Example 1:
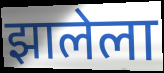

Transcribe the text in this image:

झालेला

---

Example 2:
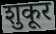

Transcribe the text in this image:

शुकूर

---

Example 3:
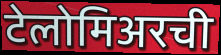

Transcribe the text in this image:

टेलोमिअरची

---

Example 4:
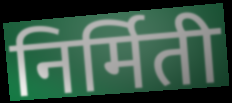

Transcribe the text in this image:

निर्मिती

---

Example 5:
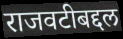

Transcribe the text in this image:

राजवटीबद्दल